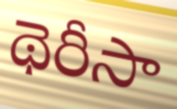
థెరీసా